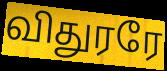
விதுரரே